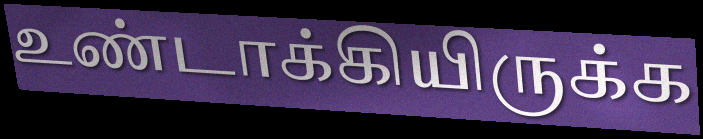
உண்டாக்கியிருக்க